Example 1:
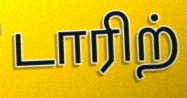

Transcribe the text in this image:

டாரிற்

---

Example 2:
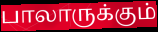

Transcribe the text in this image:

பாலாருக்கும்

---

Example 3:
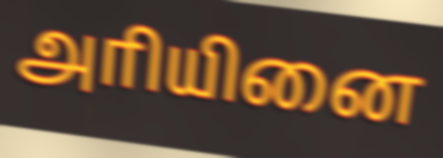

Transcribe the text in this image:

அரியினை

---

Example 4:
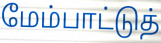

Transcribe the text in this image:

மேம்பாட்டுத்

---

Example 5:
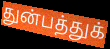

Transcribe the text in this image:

துன்பத்துக்